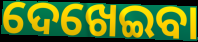
ଦେଖେଇବା